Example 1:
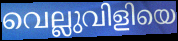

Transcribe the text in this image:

വെല്ലുവിളിയെ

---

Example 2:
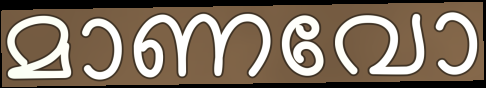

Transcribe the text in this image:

മാണവോ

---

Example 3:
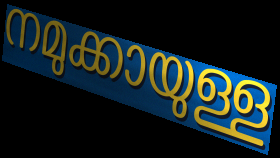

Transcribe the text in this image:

നമുക്കായുള്ള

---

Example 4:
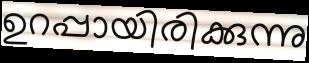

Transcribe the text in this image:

ഉറപ്പായിരിക്കുന്നു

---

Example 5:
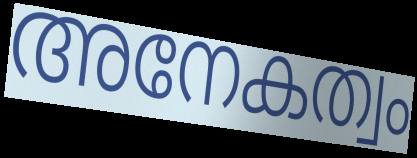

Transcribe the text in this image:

അനേകത്വം